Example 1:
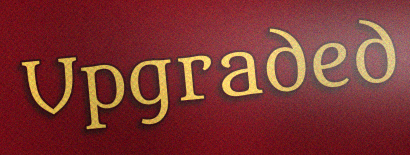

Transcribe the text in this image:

Upgraded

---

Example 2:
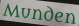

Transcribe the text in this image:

Munden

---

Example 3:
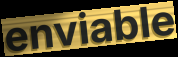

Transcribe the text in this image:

enviable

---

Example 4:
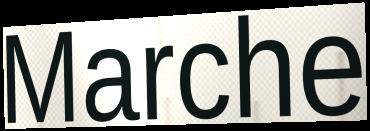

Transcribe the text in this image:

Marche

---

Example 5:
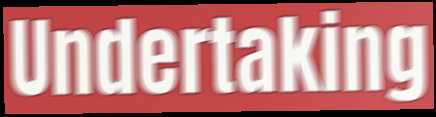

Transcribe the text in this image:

Undertaking